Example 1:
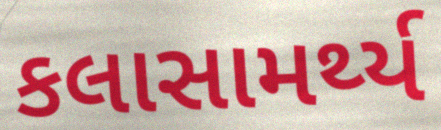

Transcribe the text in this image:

કલાસામર્થ્ય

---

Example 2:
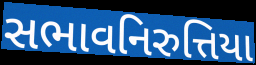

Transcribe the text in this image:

સભાવનિરુત્તિયા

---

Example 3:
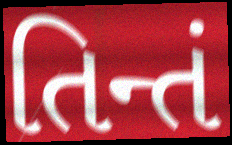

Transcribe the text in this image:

તિન્તં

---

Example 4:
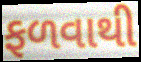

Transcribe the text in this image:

ફળવાથી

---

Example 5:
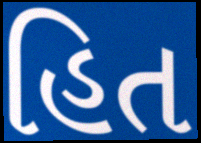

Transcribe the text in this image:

હિત